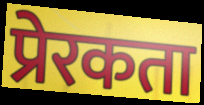
प्रेरकता